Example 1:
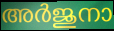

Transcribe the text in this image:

അർജുനാ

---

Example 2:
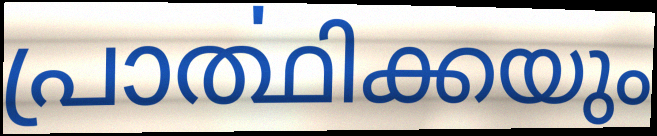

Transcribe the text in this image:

പ്രാൎത്ഥിക്കയും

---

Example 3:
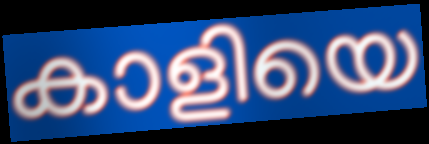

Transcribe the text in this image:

കാളിയെ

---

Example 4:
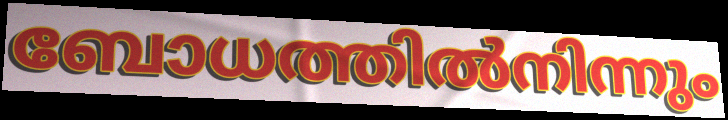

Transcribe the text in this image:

ബോധത്തിൽനിന്നും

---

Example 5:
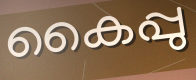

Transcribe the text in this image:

കൈപ്പു